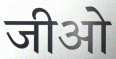
जीओ